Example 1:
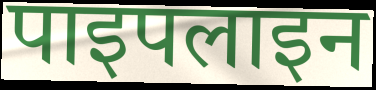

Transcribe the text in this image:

पाइपलाइन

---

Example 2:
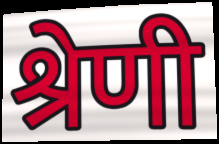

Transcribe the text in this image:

श्रेणी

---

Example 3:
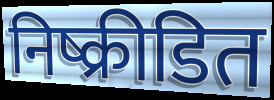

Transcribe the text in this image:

निष्क्रीडित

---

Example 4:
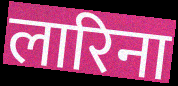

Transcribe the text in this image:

लारिना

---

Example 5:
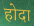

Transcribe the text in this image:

होदा